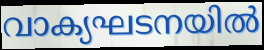
വാക്യഘടനയിൽ